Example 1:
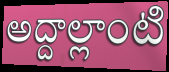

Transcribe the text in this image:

అద్దాల్లాంటి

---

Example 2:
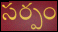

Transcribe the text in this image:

సర్పం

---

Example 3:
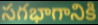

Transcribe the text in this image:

సగభాగానికి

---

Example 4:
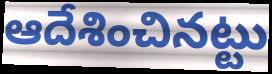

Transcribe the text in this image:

ఆదేశించినట్టు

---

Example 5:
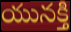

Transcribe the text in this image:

యునక్తి